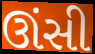
ઊંસી